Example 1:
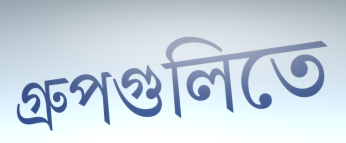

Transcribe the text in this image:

গ্রুপগুলিতে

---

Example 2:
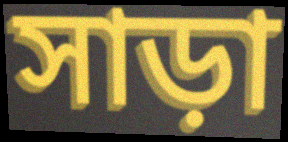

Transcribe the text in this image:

সাড়া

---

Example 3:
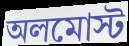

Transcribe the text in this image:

অলমোস্ট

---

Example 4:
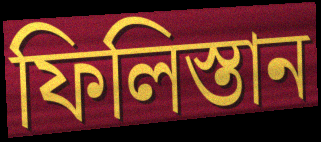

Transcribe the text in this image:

ফিলিস্তান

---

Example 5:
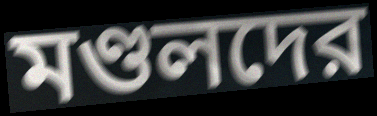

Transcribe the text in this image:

মণ্ডলদের